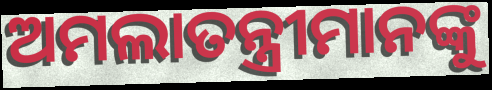
ଅମଲାତନ୍ତ୍ରୀମାନଙ୍କୁ